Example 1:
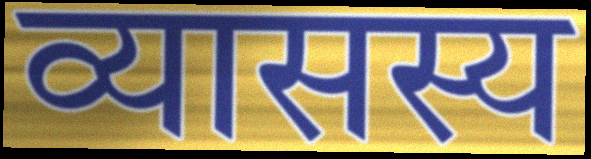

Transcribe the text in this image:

व्यासस्य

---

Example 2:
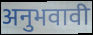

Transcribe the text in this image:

अनुभवावी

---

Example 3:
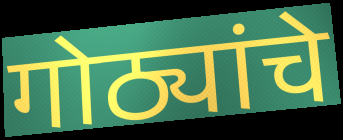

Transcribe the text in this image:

गोठ्यांचे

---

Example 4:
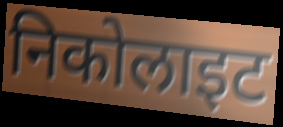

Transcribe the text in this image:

निकोलाइट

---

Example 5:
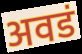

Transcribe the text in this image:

अवडं